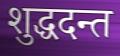
शुद्धदन्त